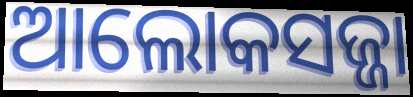
ଆଲୋକସଜ୍ଜା